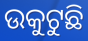
ଉକୁଟୁଛି